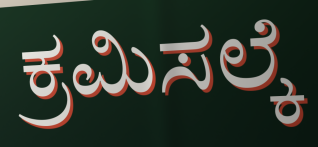
ಕ್ರಮಿಸಲ್ಕೆ